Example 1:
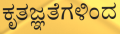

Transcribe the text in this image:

ಕೃತಜ್ಞತೆಗಳಿಂದ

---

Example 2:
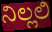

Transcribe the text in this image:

ನಿಲ್ಲಲಿ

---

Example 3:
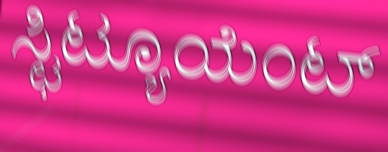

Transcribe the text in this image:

ಸ್ಟಿಟ್ಯೂಯೆಂಟ್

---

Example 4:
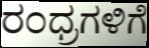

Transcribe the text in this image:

ರಂಧ್ರಗಳಿಗೆ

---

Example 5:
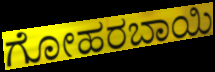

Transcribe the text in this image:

ಗೋಹರಬಾಯಿ